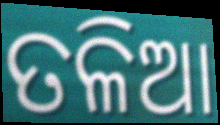
ତଳିଆ